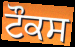
ਟੌਕਸ